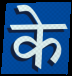
के